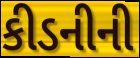
કીડનીની